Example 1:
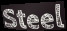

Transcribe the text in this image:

Steel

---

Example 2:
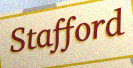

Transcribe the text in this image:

Stafford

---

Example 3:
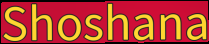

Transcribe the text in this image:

Shoshana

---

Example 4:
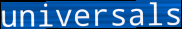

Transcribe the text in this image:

universals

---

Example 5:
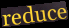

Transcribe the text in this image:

reduce